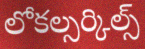
లోకల్సర్కిల్స్